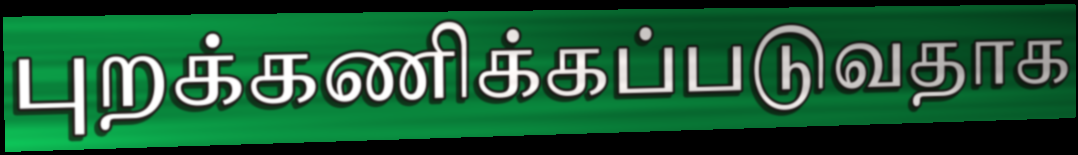
புறக்கணிக்கப்படுவதாக